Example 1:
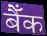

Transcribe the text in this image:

बैँक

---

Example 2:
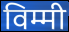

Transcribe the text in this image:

विम्मी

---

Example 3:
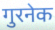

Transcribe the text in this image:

गुरनेक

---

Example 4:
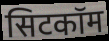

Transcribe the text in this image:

सिटकॉम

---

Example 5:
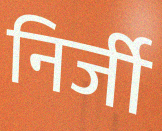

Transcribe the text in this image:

निर्जी